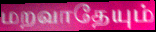
மறவாதேயும்